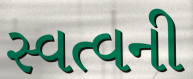
સ્વત્વની